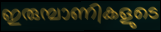
ഇരുമ്പാണികളുടെ